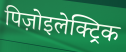
पिज़ोइलेक्ट्रिक